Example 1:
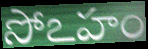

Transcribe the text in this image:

సోఽహం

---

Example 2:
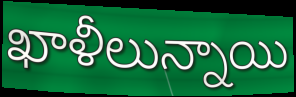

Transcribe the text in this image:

ఖాళీలున్నాయి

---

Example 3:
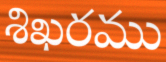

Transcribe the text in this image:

శిఖరము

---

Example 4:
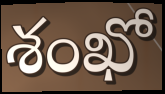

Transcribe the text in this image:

శంఖో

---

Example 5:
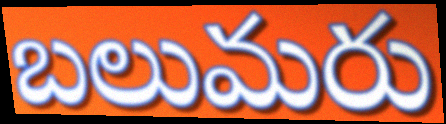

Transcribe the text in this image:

బలుమరు